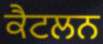
ਕੈਟਲਨ